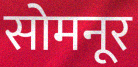
सोमनूर